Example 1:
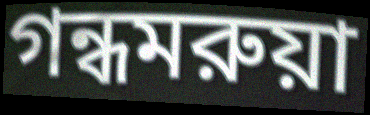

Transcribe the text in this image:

গন্ধমরুয়া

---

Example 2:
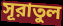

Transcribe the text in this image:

সূরাতুল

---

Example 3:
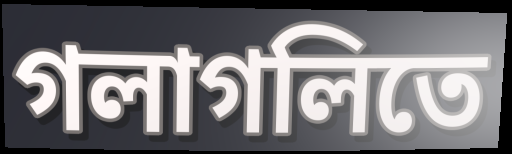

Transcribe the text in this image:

গলাগলিতে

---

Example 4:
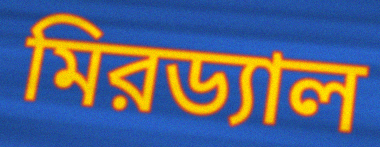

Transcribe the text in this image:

মিরড্যাল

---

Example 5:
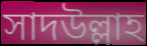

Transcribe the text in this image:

সাদউল্লাহ